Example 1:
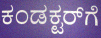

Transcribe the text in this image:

ಕಂಡಕ್ಟರ್‌ಗೆ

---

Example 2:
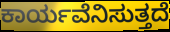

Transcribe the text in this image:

ಕಾರ್ಯವೆನಿಸುತ್ತದೆ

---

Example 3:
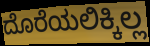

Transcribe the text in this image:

ದೊರೆಯಲಿಕ್ಕಿಲ್ಲ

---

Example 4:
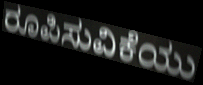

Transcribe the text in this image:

ರೂಪಿಸುವಿಕೆಯು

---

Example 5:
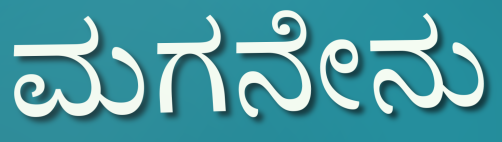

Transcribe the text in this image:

ಮಗನೇನು